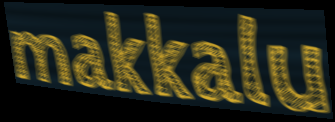
makkalu